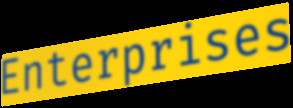
Enterprises